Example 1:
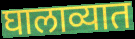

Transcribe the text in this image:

घालाव्यात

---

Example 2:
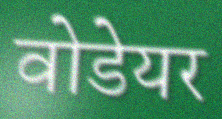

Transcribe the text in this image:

वोडेयर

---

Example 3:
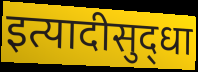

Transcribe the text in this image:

इत्यादीसुद्धा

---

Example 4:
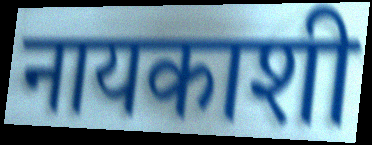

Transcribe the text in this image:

नायकाशी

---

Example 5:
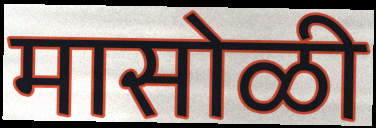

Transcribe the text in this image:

मासोळी